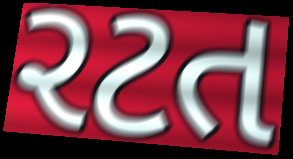
રટત